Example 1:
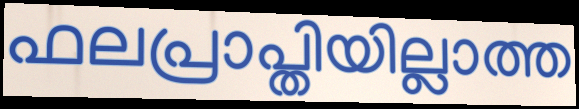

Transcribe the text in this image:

ഫലപ്രാപ്തിയില്ലാത്ത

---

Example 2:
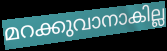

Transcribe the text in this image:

മറക്കുവാനാകില്ല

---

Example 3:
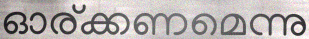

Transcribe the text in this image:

ഓര്ക്കണമെന്നു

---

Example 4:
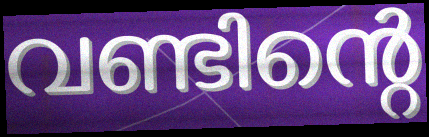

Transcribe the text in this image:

വണ്ടിന്റെ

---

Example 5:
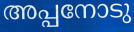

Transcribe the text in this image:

അപ്പനോടു